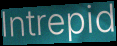
Intrepid